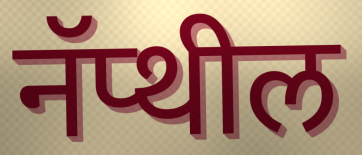
नॅप्थील